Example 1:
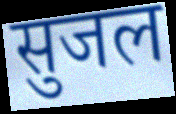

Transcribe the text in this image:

सुजल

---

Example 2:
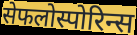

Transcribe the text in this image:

सेफलोस्पोरिन्स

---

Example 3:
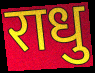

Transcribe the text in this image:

राधु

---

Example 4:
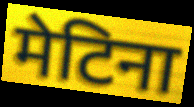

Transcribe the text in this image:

मेटिना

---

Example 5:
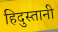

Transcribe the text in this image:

हिदुस्तानी